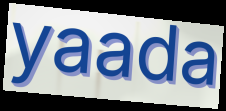
yaada